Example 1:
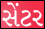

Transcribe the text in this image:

સેંટર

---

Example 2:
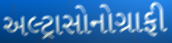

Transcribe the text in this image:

અલ્ટ્રાસોનોગ્રાફી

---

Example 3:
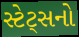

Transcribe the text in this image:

સ્ટેટ્સનો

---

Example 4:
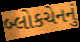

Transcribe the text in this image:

બ્લોકચેનનું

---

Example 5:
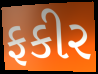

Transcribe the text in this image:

ફકીર